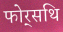
फोर्सथि